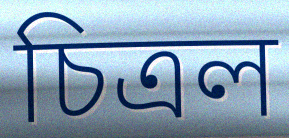
চিত্রল